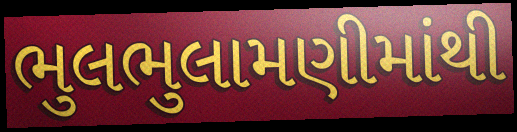
ભુલભુલામણીમાંથી